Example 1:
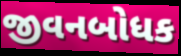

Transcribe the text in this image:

જીવનબોધક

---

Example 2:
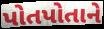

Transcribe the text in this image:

પોતપોતાને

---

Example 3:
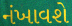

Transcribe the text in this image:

નંખાવશે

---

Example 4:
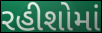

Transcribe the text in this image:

રહીશોમાં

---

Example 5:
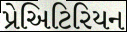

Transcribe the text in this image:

પ્રેઅિટિરિયન